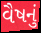
વૈષનું